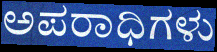
ಅಪರಾಧಿಗಳು